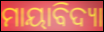
ମାୟାବିଦ୍ୟା